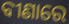
ବୀଣାରେ